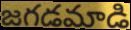
జగడమాడి